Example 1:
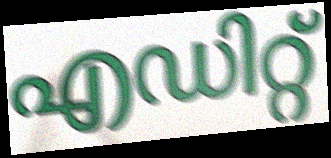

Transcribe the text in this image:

എഡിറ്റ്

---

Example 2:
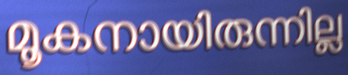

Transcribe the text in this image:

മൂകനായിരുന്നില്ല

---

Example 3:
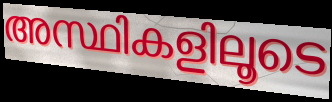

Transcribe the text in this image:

അസ്ഥികളിലൂടെ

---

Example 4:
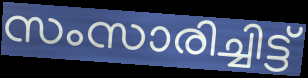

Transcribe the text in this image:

സംസാരിച്ചിട്ട്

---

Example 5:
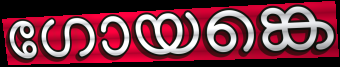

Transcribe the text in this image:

ഗോയങ്കെ